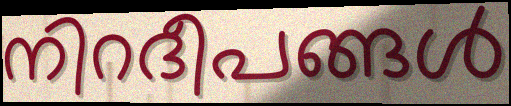
നിറദീപങ്ങൾ